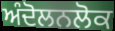
ਅੰਦੋਲਨਲੋਕ